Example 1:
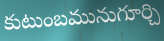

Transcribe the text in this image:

కుటుంబమునుగూర్చి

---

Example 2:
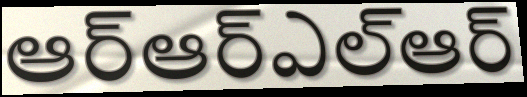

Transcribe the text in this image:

ఆర్ఆర్ఎల్ఆర్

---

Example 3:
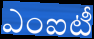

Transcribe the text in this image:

ఎంఐటీ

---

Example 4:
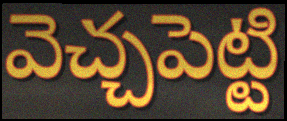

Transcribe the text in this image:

వెచ్చపెట్టి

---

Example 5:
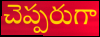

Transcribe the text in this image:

చెప్పరుగా